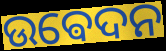
ଉଵେଦନ